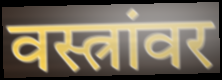
वस्त्रांवर